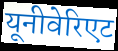
यूनीवेरिएट